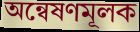
অন্বেষণমূলক